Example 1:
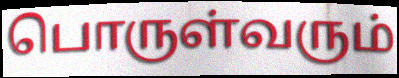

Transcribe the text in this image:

பொருள்வரும்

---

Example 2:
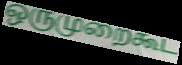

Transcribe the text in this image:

ஒருமுறைகூட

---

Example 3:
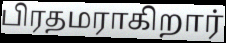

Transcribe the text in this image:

பிரதமராகிறார்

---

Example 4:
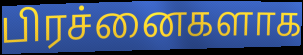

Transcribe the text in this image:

பிரச்னைகளாக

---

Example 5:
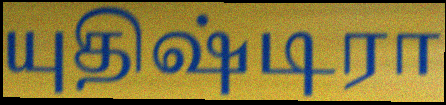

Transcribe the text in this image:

யுதிஷ்டிரா